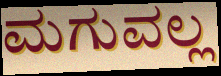
ಮಗುವಲ್ಲ